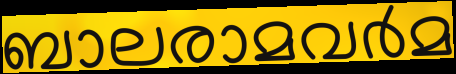
ബാലരാമവർമ